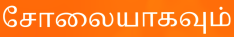
சோலையாகவும்